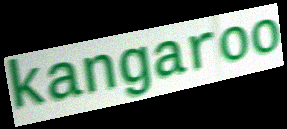
kangaroo